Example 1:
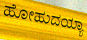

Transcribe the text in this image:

ಹೋಹುದಯ್ಯಾ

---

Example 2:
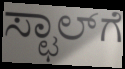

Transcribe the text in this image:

ಸ್ಟಾಲ್‌ಗೆ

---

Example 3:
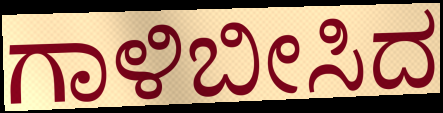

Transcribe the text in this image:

ಗಾಳಿಬೀಸಿದ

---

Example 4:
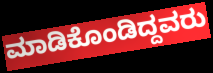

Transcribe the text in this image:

ಮಾಡಿಕೊಂಡಿದ್ದವರು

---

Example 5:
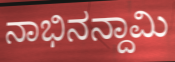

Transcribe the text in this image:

ನಾಭಿನನ್ದಾಮಿ